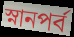
স্নানপর্ব